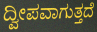
ದ್ವೀಪವಾಗುತ್ತದೆ